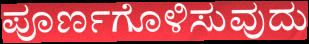
ಪೂರ್ಣಗೊಳಿಸುವುದು